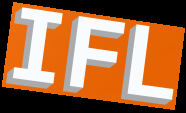
IFL